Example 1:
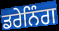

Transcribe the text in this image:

ਡਰੇਨਿੰਗ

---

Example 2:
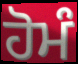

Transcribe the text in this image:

ਹੋਮੰ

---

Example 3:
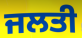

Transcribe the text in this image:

ਜਲਤੀ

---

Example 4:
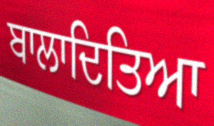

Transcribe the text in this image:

ਬਾਲਾਦਿਤਿਆ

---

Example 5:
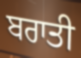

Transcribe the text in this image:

ਬਰਾਤੀ